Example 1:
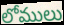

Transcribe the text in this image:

లోములు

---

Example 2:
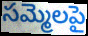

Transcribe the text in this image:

సమ్మెలపై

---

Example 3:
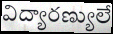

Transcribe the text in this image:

విద్యారణ్యులే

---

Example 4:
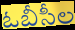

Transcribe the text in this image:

ఓబీసీల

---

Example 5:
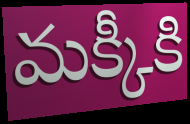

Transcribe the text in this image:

మక్కీకి